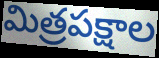
మిత్రపక్షాల